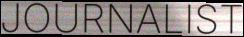
JOURNALIST